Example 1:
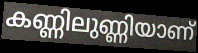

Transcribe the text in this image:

കണ്ണിലുണ്ണിയാണ്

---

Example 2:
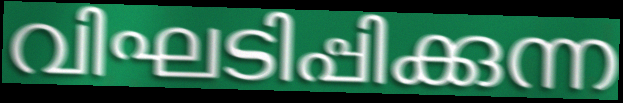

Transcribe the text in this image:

വിഘടിപ്പിക്കുന്ന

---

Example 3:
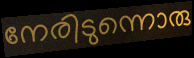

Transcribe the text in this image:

നേരിടുന്നൊരു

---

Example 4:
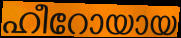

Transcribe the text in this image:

ഹീറോയായ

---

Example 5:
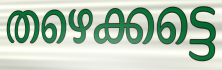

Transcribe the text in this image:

തഴെക്കട്ടെ